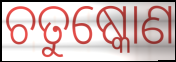
ଚତୁଷ୍କୋଣ